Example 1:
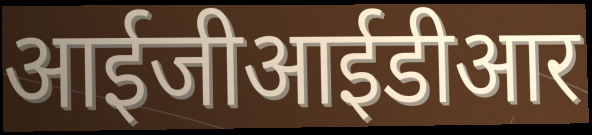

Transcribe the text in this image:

आईजीआईडीआर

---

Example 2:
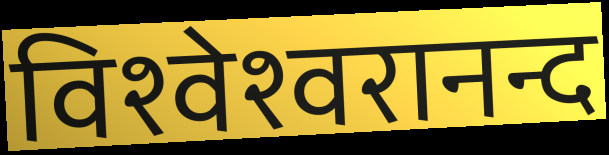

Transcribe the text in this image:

विश्वेश्वरानन्द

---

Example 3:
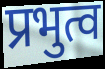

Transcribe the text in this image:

प्रभुत्व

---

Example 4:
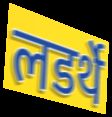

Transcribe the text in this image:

लडर्थे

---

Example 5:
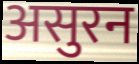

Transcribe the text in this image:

असुरन